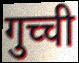
गुच्ची